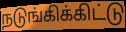
நடுங்கிக்கிட்டு